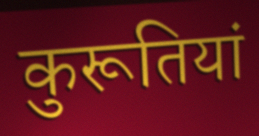
कुरूतियां